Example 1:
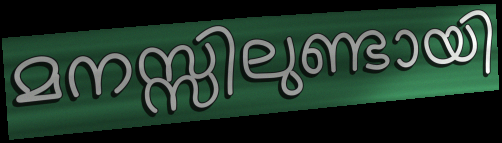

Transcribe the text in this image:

മനസ്സിലുണ്ടായി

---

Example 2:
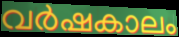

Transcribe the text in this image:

വർഷകാലം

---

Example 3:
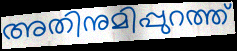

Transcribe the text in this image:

അതിനുമിപ്പുറത്ത്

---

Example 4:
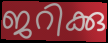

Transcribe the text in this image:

ജറിക്കു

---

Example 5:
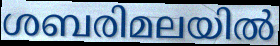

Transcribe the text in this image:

ശബരിമലയിൽ